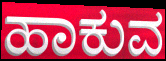
ಹಾಕುವ